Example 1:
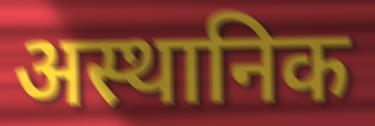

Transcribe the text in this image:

अस्थानिक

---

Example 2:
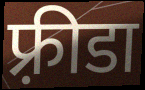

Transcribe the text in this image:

फ़्रीडा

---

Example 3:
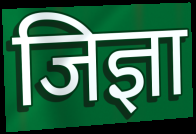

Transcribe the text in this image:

जिज्ञा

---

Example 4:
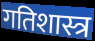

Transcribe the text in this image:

गतिशास्त्र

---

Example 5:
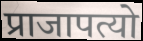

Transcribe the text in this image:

प्राजापत्यो